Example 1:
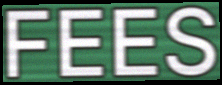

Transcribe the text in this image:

FEES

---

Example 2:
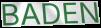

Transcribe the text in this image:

BADEN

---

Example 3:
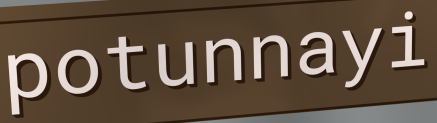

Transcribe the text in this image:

potunnayi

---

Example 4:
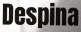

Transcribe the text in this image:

Despina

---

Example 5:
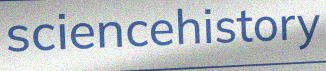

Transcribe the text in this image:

sciencehistory